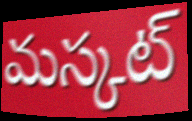
మస్కట్